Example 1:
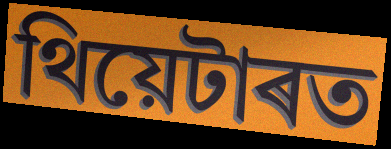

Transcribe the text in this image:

থিয়েটাৰত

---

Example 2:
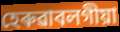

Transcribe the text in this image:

হেৰুৱাবলগীয়া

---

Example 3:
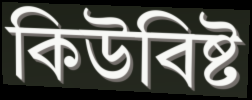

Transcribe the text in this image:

কিউবিষ্ট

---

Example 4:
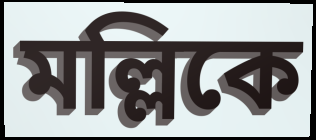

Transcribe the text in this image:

মল্লিকে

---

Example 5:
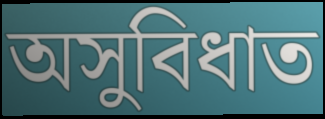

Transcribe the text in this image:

অসুবিধাত